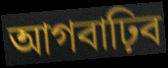
আগবাঢ়িব